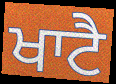
ਖਾਟੈ